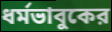
ধর্মভাবুকের